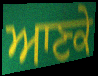
ਆਣਕੇ